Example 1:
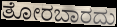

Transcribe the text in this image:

ತೋರಬಾರದು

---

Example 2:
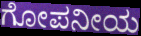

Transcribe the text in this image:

ಗೋಪನೀಯ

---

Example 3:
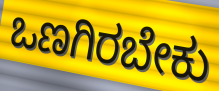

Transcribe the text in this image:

ಒಣಗಿರಬೇಕು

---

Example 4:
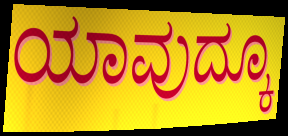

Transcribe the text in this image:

ಯಾವುದ್ಕೂ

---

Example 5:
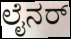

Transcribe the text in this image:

ಲೈನರ್